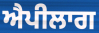
ਐਪੀਲਾਗ